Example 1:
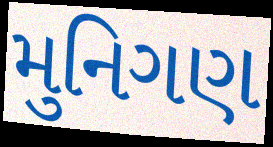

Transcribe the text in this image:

મુનિગણ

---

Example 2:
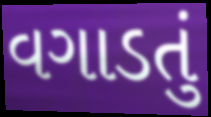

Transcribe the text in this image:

વગાડતું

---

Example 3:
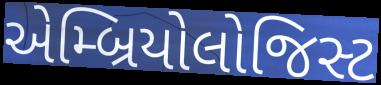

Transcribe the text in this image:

એમ્બ્રિયોલોજિસ્ટ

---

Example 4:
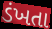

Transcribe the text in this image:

ડંખતા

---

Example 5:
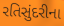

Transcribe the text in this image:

રતિસુંદરીના